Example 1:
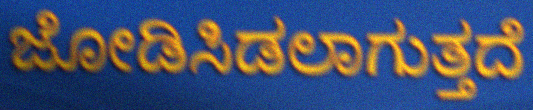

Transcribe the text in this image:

ಜೋಡಿಸಿಡಲಾಗುತ್ತದೆ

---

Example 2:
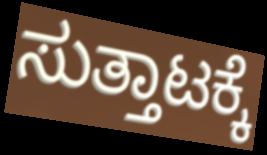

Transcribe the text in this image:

ಸುತ್ತಾಟಕ್ಕೆ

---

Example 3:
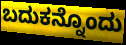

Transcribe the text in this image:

ಬದುಕನ್ನೊಂದು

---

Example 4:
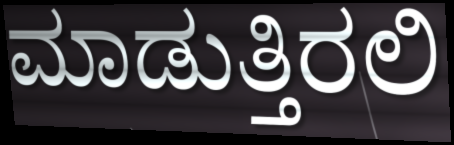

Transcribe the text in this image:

ಮಾಡುತ್ತಿರಲಿ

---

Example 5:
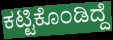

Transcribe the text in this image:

ಕಟ್ಟಿಕೊಂಡಿದ್ದೆ